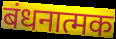
बंधनात्मक